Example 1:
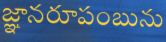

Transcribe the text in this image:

జ్ఞానరూపంబును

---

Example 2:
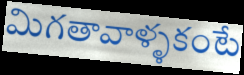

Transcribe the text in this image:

మిగతావాళ్ళకంటే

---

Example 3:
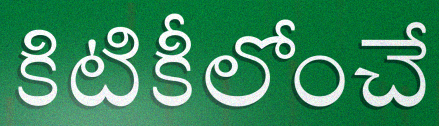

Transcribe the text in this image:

కిటికీలోంచే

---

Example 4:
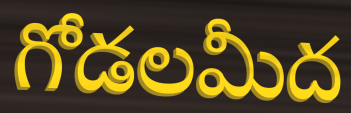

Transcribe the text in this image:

గోడలమీద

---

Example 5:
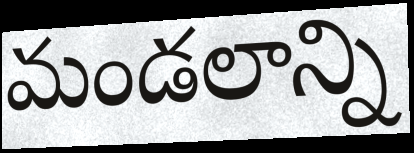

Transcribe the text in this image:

మండలాన్ని